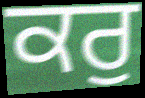
ਕਰੁ